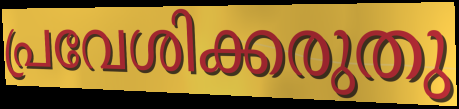
പ്രവേശിക്കരുതു